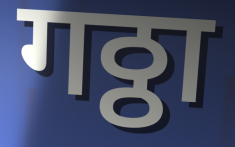
गठ्ठा